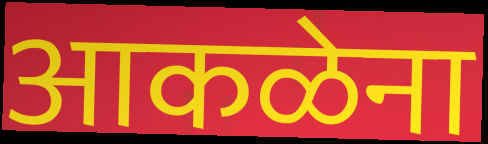
आकळेना